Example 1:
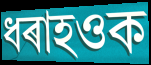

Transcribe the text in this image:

ধৰাহওক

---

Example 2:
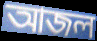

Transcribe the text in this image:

আজল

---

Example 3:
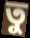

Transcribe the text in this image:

তু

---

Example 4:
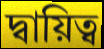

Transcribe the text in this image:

দ্বায়িত্ব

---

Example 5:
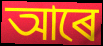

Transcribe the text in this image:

আৰে